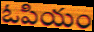
ఓపియం